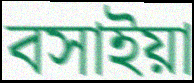
বসাইয়া